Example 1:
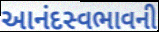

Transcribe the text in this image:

આનંદસ્વભાવની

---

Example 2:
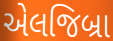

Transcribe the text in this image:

એલજિબ્રા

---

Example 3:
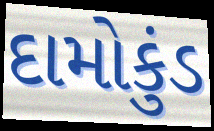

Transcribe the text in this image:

દામોકુંડ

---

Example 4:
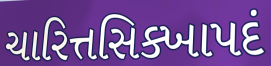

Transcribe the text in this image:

ચારિત્તસિક્ખાપદં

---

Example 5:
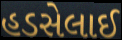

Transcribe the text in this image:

હડસેલાઈ